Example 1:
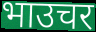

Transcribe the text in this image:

भाउचर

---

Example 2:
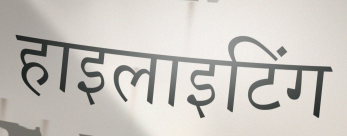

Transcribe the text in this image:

हाइलाइटिंग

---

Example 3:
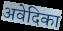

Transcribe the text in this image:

अवेदिका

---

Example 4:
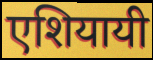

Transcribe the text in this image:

एशियायी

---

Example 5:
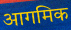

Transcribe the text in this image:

आगमिक